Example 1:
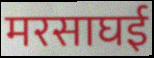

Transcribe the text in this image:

मरसाघई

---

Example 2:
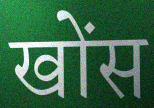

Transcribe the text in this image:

खोंस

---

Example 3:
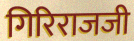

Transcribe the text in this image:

गिरिराजजी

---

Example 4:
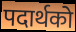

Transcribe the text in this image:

पदार्थको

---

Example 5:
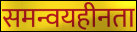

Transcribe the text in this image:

समन्वयहीनता